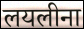
लयलीना